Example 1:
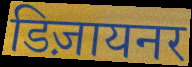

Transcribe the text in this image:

डिज़ायनर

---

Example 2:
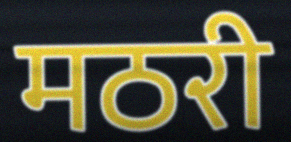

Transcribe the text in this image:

मठरी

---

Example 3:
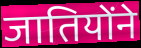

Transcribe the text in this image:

जातियोंने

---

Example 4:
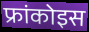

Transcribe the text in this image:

फ्रांकोइस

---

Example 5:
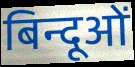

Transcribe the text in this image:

बिन्दूओं